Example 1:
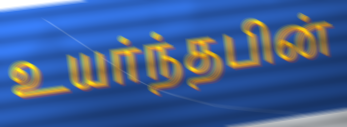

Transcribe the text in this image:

உயர்ந்தபின்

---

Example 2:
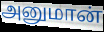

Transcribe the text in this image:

அனுமான்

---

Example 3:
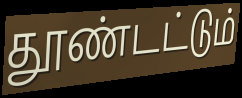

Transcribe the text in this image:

தூண்டட்டும்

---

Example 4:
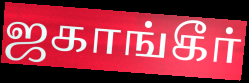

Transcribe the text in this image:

ஜகாங்கீர்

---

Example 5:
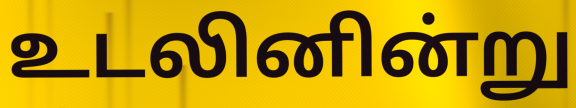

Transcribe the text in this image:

உடலினின்று